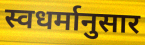
स्वधर्मानुसार